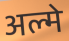
अल्मे